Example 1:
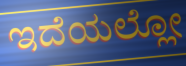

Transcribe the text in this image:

ಇದೆಯಲ್ಲೋ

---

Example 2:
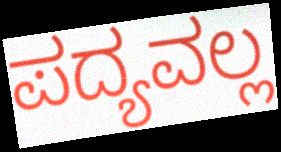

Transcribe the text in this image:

ಪದ್ಯವಲ್ಲ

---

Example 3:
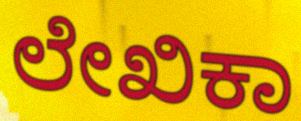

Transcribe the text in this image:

ಲೇಖಿಕಾ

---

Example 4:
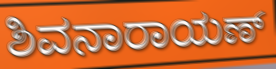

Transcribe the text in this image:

ಶಿವನಾರಾಯಣ್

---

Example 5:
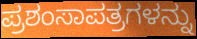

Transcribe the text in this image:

ಪ್ರಶಂಸಾಪತ್ರಗಳನ್ನು